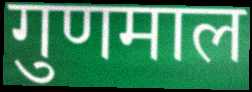
गुणमाल